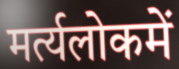
मर्त्यलोकमें